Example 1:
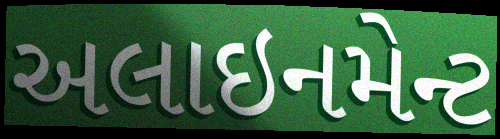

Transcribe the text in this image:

અલાઇનમેન્ટ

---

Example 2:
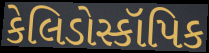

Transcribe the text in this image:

કેલિડોસ્કૉપિક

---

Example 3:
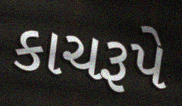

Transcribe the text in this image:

કાચરૂપે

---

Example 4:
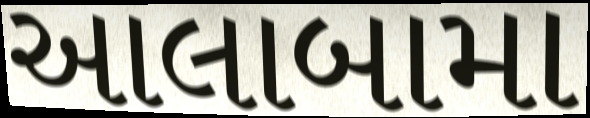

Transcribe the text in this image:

આલાબામા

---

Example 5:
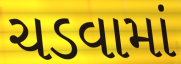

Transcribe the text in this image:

ચડવામાં